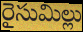
రైసుమిల్లు